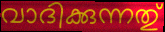
വാദിക്കുന്നതു്